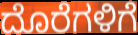
ದೊರೆಗಳಿಗೆ